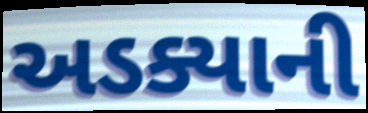
અડક્યાની